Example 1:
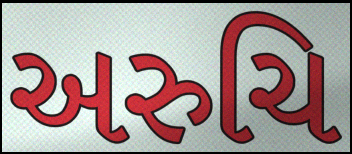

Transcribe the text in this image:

અરુચિ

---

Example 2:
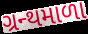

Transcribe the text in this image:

ગ્રન્થમાળા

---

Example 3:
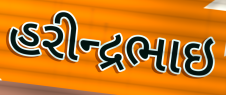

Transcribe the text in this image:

હરીન્દ્રભાઇ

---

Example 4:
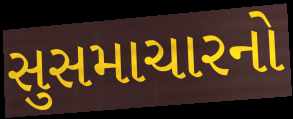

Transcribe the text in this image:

સુસમાચારનો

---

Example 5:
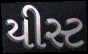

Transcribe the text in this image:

યીસ્ટ